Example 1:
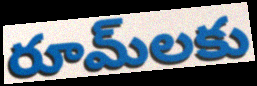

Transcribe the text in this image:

రూమ్‌లకు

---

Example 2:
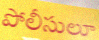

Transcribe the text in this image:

పోలీసులూ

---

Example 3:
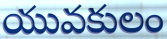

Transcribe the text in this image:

యువకులం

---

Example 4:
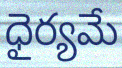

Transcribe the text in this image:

ధైర్యమే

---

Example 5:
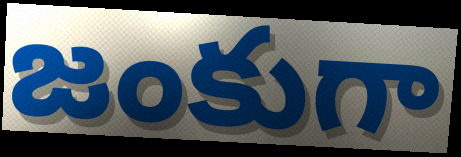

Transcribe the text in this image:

జంకుగా